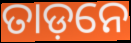
ତାଡ଼ନେ